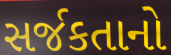
સર્જકતાનો